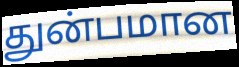
துன்பமான